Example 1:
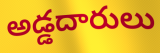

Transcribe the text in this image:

అడ్డదారులు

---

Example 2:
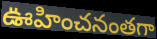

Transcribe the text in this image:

ఊహించనంతగా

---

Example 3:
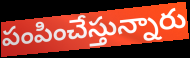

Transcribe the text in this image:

పంపించేస్తున్నారు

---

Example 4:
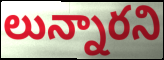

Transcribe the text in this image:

లున్నారని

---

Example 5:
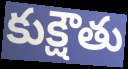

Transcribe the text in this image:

కుక్షౌతు